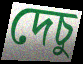
দেচু